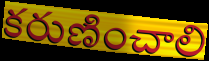
కరుణించాలి